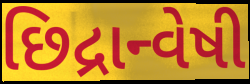
છિદ્રાન્વેષી